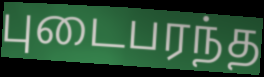
புடைபரந்த